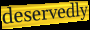
deservedly